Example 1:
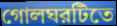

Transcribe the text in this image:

গোলঘরটিতে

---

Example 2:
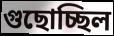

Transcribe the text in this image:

গুছোচ্ছিল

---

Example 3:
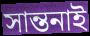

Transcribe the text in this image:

সান্তনাই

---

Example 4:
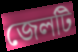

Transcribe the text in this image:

জেলটি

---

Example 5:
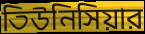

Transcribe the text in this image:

তিউনিসিয়ার